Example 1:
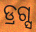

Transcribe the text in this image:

ଡ୍ରଗ୍ସ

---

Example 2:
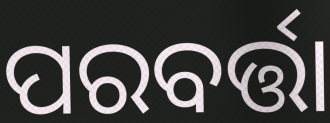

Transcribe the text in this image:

ପରବର୍ତ୍ତା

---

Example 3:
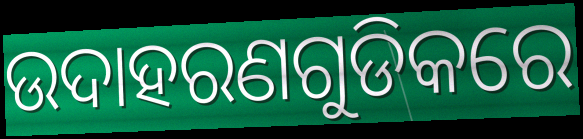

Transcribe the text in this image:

ଉଦାହରଣଗୁଡିକରେ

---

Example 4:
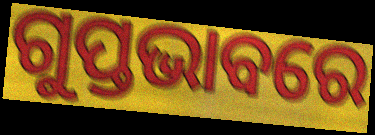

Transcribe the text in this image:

ଗୁପ୍ତଭାବରେ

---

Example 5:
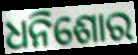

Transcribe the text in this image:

ଧନିଶୋର